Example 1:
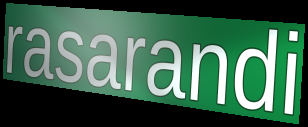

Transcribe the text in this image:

rasarandi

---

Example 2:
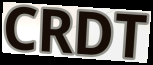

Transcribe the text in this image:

CRDT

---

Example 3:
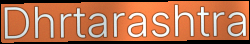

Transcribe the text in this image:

Dhrtarashtra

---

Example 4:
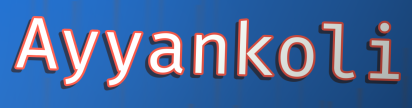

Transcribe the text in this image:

Ayyankoli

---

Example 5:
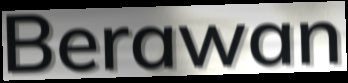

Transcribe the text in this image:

Berawan